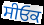
ਸੀਓਕ